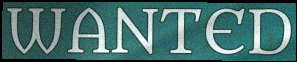
WANTED